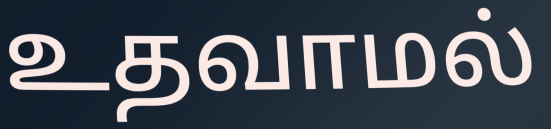
உதவாமல்